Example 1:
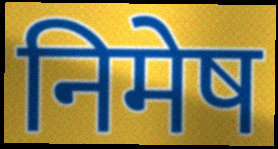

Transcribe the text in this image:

निमेष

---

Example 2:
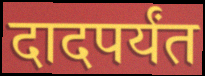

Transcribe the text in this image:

दादपर्यंत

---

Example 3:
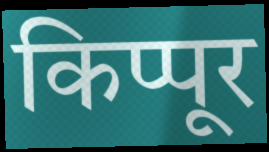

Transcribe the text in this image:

किप्पूर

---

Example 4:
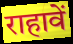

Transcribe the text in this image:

राहावें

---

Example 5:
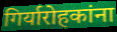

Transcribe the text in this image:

गिर्यारोहकांना